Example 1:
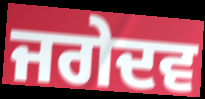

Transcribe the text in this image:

ਜਗੇਦਵ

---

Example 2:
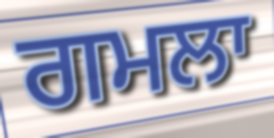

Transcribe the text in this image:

ਗਮਲਾ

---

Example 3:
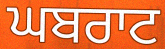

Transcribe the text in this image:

ਘਬਰਾਟ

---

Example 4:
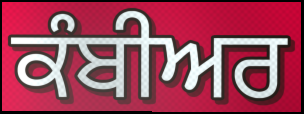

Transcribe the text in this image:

ਕੰਬੀਅਰ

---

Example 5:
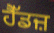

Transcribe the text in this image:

ਹੈੱਡਜ਼